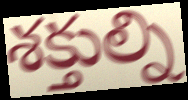
శక్తుల్ని